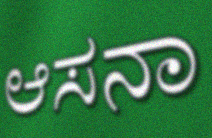
ಆಸನಾ